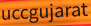
uccgujarat